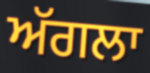
ਅੱਗਲਾ